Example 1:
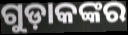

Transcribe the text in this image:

ଗୁଡ଼ାକଙ୍କର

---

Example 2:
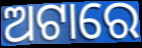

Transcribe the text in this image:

ଅଟାରେ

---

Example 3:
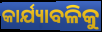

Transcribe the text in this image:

କାର୍ଯ୍ୟାବଳିକୁ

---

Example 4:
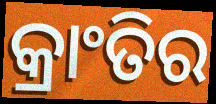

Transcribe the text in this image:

କ୍ରାଂତିର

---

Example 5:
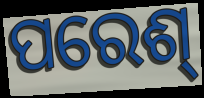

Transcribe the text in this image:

ପରେଶ୍